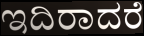
ಇದಿರಾದರೆ